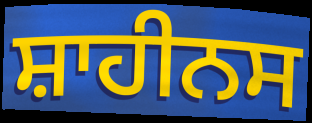
ਸ਼ਾਹੀਨਸ